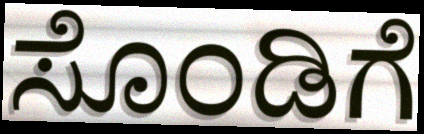
ಸೊಂಡಿಗೆ